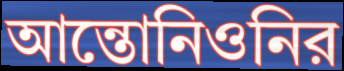
আন্তোনিওনির